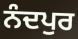
ਨੰਦਪੁਰ